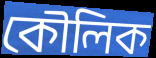
কৌলিক